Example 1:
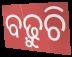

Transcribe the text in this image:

ବଢ଼ୁଚି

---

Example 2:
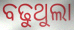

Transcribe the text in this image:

ବଢୁଥୁଲା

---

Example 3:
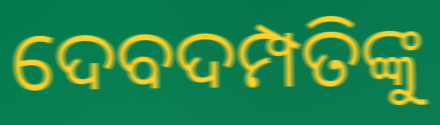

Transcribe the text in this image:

ଦେବଦମ୍ପତିଙ୍କୁ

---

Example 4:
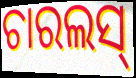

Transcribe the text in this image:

ଚାରଲସ୍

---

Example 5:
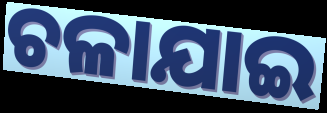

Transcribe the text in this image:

ଚଳାଯାଇ